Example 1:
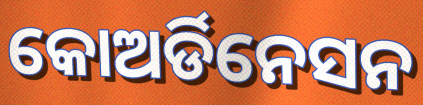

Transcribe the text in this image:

କୋଅର୍ଡିନେସନ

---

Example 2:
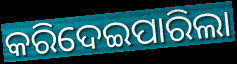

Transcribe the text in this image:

କରିଦେଇପାରିଲା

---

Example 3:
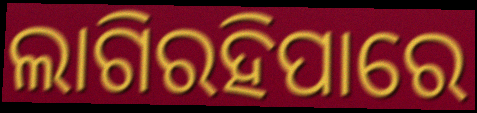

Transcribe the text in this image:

ଲାଗିରହିପାରେ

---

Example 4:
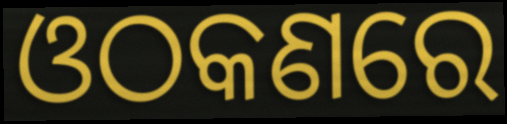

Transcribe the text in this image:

ଓଠକଣରେ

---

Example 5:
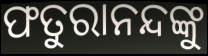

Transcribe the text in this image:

ଫତୁରାନନ୍ଦଙ୍କୁ